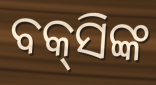
ବକ୍‌ସିଙ୍କ